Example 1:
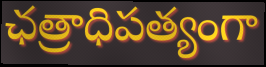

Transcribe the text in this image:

ఛత్రాధిపత్యంగా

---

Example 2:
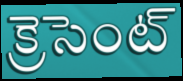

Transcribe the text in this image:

క్రెసెంట్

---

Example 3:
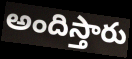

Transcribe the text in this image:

అందిస్తారు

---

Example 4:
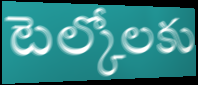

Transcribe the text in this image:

టెల్కోలకు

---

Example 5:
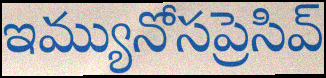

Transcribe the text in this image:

ఇమ్యునోసప్రెసివ్